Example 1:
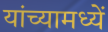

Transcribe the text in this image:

यांच्यामध्यें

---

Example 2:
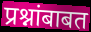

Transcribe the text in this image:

प्रश्नांबाबत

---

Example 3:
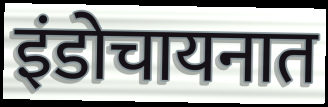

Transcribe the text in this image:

इंडोचायनात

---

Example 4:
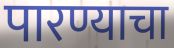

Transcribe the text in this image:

पारण्याचा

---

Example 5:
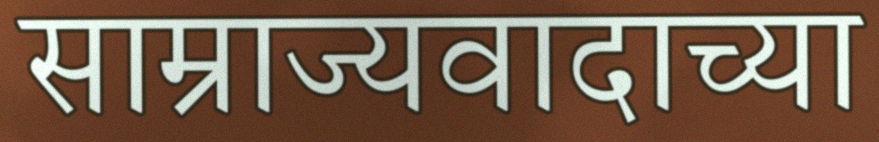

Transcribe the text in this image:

साम्राज्यवादाच्या